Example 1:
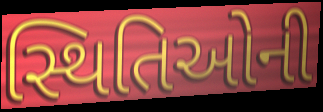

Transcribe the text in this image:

સ્થિતિઓની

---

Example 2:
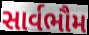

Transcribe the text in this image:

સાર્વભૌમ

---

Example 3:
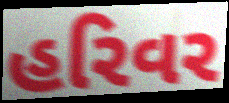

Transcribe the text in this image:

હરિવર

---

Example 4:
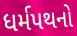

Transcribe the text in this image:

ધર્મપથનો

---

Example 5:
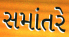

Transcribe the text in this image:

સમાંતરે